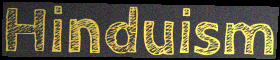
Hinduism